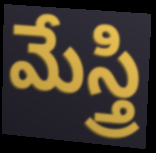
మేస్త్రి